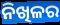
ନିଖିଳର